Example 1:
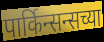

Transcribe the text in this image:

पार्किन्सन्सच्या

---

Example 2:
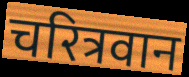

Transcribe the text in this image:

चरित्रवान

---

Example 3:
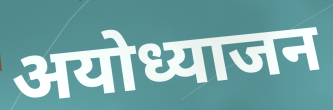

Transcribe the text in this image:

अयोध्याजन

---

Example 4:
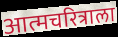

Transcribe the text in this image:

आत्मचरित्राला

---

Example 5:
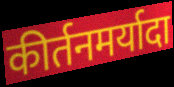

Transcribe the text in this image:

कीर्तनमर्यादा